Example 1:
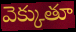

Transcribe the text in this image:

వెక్కుతూ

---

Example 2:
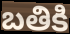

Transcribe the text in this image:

బతికి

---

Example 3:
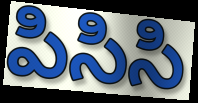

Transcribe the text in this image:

పిసిసి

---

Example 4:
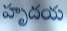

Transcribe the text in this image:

హృదయ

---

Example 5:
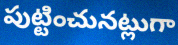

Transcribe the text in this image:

పుట్టించునట్లుగా